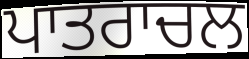
ਪਾਤਰਾਚਲ